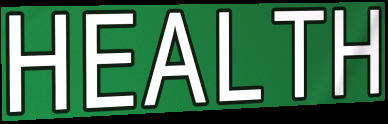
HEALTH